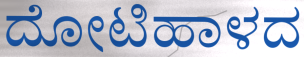
ದೋಟಿಹಾಳದ